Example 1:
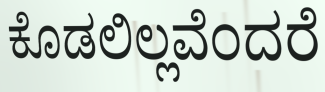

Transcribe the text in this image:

ಕೊಡಲಿಲ್ಲವೆಂದರೆ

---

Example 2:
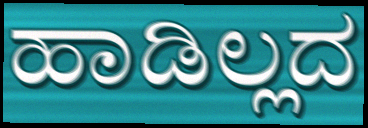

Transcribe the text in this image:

ಹಾಡಿಲ್ಲದ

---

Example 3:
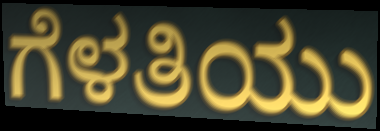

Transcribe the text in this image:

ಗೆಳತಿಯು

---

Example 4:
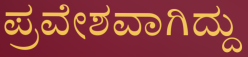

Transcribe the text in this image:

ಪ್ರವೇಶವಾಗಿದ್ದು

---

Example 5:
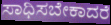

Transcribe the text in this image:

ಸಾಧಿಸಬೇಕಾದರೆ